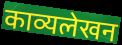
काव्यलेखन